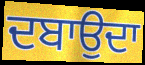
ਦਬਾਉਦਾ